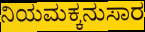
ನಿಯಮಕ್ಕನುಸಾರ